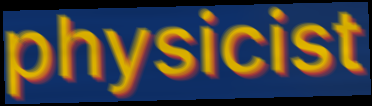
physicist